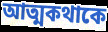
আত্মকথাকে